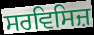
ਸਰਵਿਸਿਜ਼